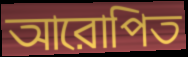
আরোপিত